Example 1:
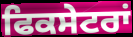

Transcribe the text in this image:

ਫਿਕਸੇਟਰਾਂ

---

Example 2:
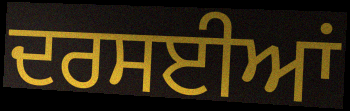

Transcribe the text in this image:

ਦਰਸਈਆਂ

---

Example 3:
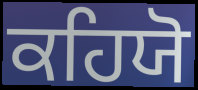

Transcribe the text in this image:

ਕਹਿਯੋ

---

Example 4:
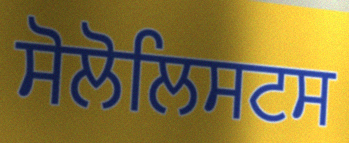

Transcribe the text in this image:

ਸੋਲੋਲਿਸਟਸ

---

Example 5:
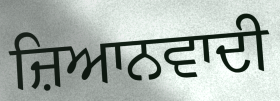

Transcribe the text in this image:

ਜ਼ਿਆਨਵਾਦੀ